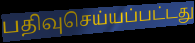
பதிவுசெய்யப்பட்டது